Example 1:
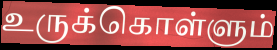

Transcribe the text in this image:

உருக்கொள்ளும்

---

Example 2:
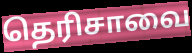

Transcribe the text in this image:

தெரிசாவை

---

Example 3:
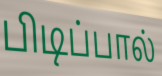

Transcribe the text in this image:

பிடிப்பால்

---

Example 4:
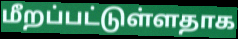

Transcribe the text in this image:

மீறப்பட்டுள்ளதாக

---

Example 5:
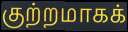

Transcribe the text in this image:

குற்றமாகக்